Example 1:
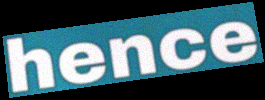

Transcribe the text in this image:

hence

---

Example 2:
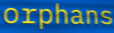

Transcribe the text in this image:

orphans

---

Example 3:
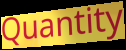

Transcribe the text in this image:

Quantity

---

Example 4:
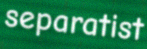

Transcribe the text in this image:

separatist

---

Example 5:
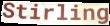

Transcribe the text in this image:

Stirling